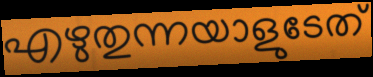
എഴുതുന്നയാളുടേത്